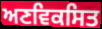
ਅਣਵਿਕਸਿਤ